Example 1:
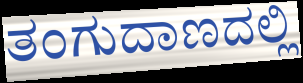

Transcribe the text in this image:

ತಂಗುದಾಣದಲ್ಲಿ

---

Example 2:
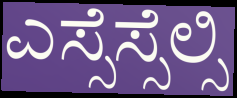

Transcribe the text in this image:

ಎಸ್ಸೆಸ್ಸೆಲ್ಸಿ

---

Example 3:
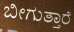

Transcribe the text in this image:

ಬೀಗುತ್ತಾರೆ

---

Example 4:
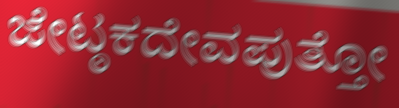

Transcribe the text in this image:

ಜೇಟ್ಠಕದೇವಪುತ್ತೋ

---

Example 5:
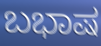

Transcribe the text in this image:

ಬಭಾಷ